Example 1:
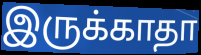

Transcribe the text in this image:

இருக்காதா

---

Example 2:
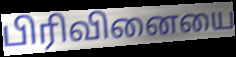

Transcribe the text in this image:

பிரிவினையை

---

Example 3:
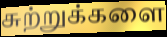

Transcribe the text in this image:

சுற்றுக்களை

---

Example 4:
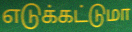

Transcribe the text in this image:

எடுக்கட்டுமா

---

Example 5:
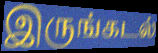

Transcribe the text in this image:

இருங்கடல்